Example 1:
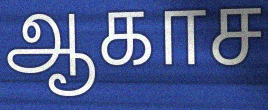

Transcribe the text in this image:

ஆகாச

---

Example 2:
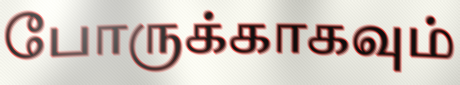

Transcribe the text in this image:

போருக்காகவும்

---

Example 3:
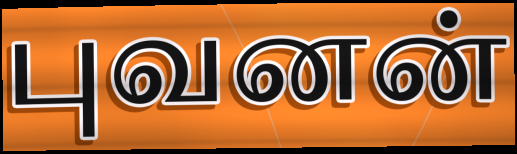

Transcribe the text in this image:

புவனன்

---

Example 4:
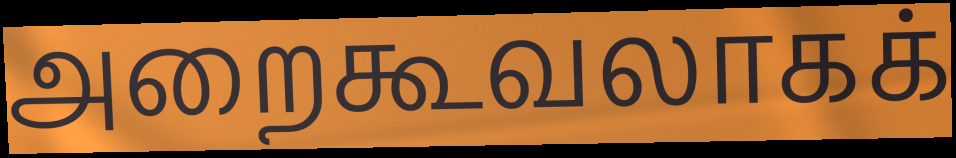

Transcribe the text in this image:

அறைகூவலாகக்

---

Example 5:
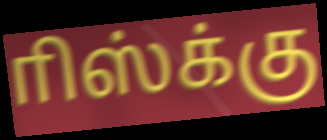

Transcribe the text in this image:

ரிஸ்க்கு